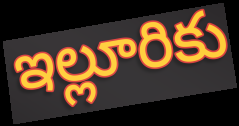
ఇల్లూరికు